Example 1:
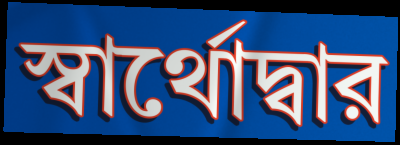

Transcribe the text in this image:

স্বার্থোদ্বার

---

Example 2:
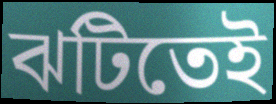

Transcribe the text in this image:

ঝটিতেই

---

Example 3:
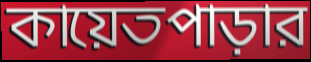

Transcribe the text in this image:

কায়েতপাড়ার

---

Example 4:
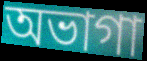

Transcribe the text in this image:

অভাগা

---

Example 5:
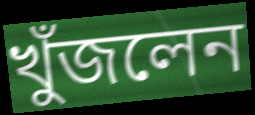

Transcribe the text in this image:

খুঁজলেন